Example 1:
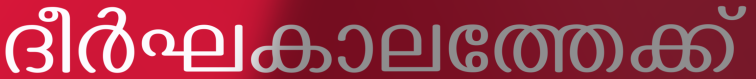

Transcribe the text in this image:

ദീർഘകാലത്തേക്ക്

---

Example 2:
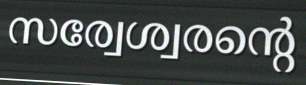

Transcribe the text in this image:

സര്വേശ്വരന്റെ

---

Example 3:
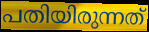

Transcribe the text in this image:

പതിയിരുന്നത്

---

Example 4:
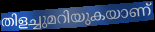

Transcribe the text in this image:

തിളച്ചുമറിയുകയാണ്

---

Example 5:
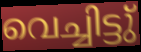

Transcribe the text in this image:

വെച്ചിട്ടു്